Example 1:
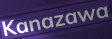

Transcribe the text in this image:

Kanazawa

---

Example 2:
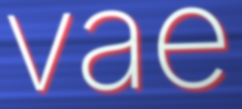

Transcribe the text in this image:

vae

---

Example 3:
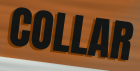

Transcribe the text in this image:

COLLAR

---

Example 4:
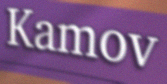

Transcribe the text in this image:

Kamov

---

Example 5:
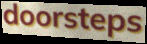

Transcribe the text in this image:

doorsteps